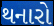
થનારો